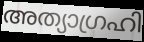
അത്യാഗ്രഹി